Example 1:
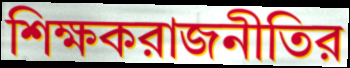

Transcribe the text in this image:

শিক্ষকরাজনীতির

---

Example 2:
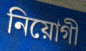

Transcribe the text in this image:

নিয়োগী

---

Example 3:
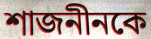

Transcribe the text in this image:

শাজনীনকে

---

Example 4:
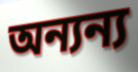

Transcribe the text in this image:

অন্যন্য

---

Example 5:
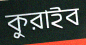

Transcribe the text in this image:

কুরাইব